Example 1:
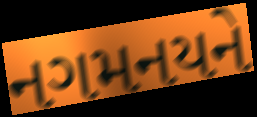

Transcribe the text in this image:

નગમનયને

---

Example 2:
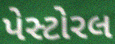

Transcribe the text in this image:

પેસ્ટોરલ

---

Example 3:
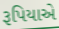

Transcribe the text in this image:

રૂપિયાએ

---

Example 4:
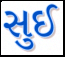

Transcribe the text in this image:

સુઈ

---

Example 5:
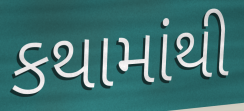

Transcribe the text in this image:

કથામાંથી